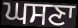
ਘਸਣਾ